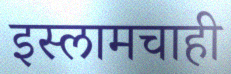
इस्लामचाही